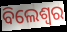
ବିଲେଶ୍ଵର